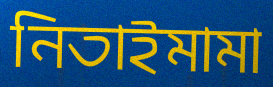
নিতাইমামা